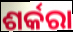
ଶର୍କରା